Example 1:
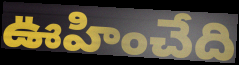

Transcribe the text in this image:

ఊహించేది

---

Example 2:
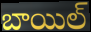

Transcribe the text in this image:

బాయిల్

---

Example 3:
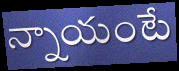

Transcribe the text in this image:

న్నాయంటే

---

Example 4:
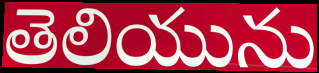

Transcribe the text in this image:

తెలియును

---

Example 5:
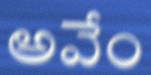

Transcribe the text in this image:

అవేం